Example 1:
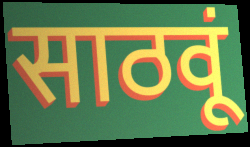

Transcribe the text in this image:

साठवूं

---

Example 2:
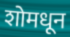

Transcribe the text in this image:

शोमधून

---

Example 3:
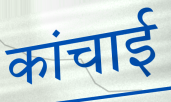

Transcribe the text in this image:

कांचाई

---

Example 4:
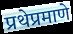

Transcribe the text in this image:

प्रथेप्रमाणे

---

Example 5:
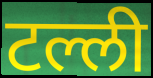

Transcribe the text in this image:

टल्ली